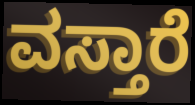
ವಸ್ತಾರೆ